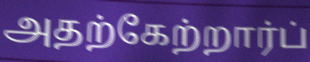
அதற்கேற்றார்ப்